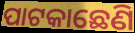
ପାଟକାଛେଣି